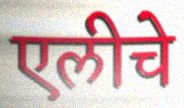
एलीचे